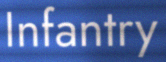
Infantry